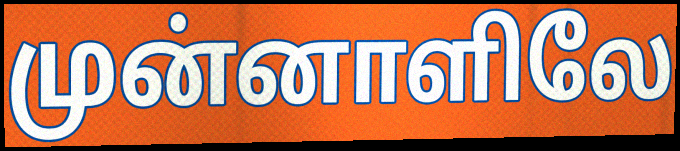
முன்னாளிலே